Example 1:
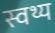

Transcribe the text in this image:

स्वथ्य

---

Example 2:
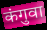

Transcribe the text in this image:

कंगुवा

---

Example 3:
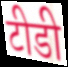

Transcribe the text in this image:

टीडी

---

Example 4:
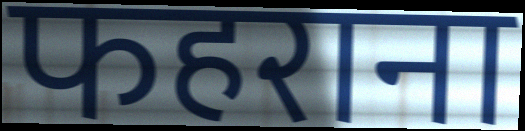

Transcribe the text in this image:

फहराना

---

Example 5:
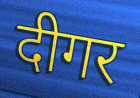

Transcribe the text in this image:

दीगर